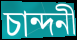
চান্দনী